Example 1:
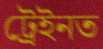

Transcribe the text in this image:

ট্ৰেইনত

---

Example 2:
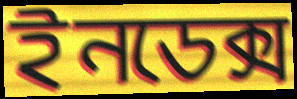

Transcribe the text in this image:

ইনডেক্স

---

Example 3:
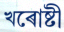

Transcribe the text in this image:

খৰোষ্টী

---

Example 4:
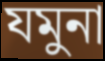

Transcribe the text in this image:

যমুনা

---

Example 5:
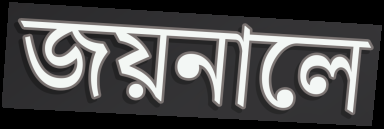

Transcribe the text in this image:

জয়নালে